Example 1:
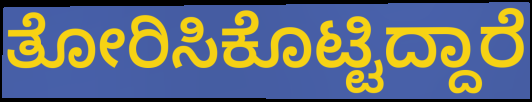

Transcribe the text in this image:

ತೋರಿಸಿಕೊಟ್ಟಿದ್ದಾರೆ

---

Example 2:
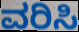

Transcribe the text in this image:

ವರಿಸಿ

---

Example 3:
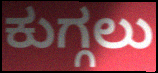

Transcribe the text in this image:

ಕುಗ್ಗಲು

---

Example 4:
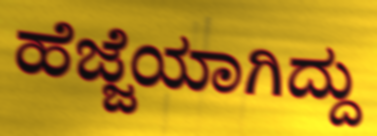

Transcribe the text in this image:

ಹೆಜ್ಜೆಯಾಗಿದ್ದು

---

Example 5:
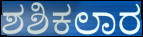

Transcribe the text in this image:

ಶಶಿಕಲಾರ